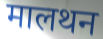
मालथन